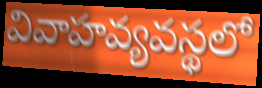
వివాహవ్యవస్థలో